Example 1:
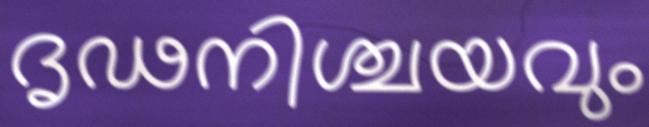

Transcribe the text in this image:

ദൃഢനിശ്ചയവും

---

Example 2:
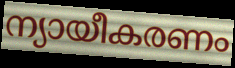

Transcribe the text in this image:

ന്യായീകരണം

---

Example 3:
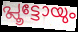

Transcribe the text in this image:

പ്ലൂട്ടോയും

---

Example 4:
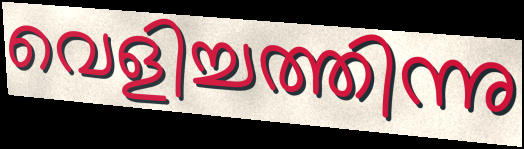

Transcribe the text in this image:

വെളിച്ചത്തിന്നു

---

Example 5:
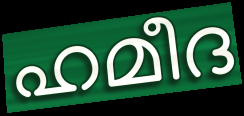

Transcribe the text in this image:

ഹമീദ